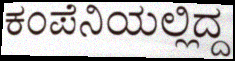
ಕಂಪೆನಿಯಲ್ಲಿದ್ದ